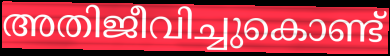
അതിജീവിച്ചുകൊണ്ട്